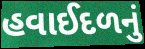
હવાઈદળનું